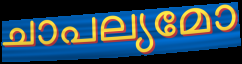
ചാപല്യമോ